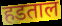
हडताल